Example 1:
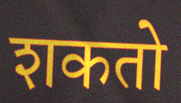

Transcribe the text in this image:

शकतो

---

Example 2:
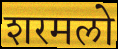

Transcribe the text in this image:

शरमलो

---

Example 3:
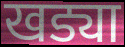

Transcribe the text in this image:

खड्या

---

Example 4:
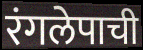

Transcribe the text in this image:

रंगलेपाची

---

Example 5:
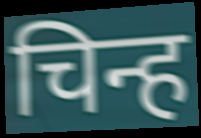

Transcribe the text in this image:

चिन्ह